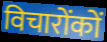
विचारोंकों